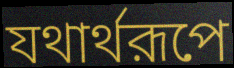
যথার্থরূপে